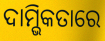
ଦାମ୍ଭିକତାରେ